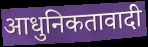
आधुनिकतावादी